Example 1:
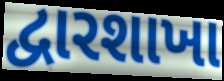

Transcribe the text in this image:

દ્વારશાખા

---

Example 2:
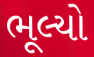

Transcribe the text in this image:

ભૂલ્‍યો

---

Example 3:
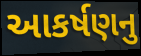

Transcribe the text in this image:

આકર્ષણનુ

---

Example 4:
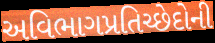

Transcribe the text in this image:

અવિભાગપ્રતિચ્છેદોની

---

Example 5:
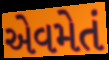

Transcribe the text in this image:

એવમેતં